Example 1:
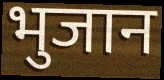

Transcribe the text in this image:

भुजान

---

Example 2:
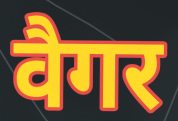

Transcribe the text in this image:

वैगर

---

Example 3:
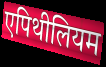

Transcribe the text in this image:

एपिथीलियम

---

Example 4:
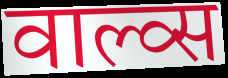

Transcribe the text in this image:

वाल्व्स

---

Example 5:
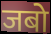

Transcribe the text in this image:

जबो